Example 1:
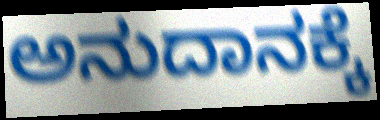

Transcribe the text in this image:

ಅನುದಾನಕ್ಕೆ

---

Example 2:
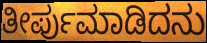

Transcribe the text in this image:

ತೀರ್ಪುಮಾಡಿದನು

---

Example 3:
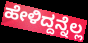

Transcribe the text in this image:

ಹೇಳಿದ್ದನ್ನೆಲ್ಲ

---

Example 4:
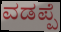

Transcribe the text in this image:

ವಡಪ್ಪೆ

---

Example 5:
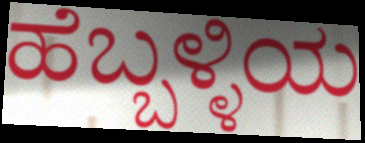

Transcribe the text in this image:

ಹೆಬ್ಬಳ್ಳಿಯ